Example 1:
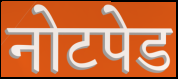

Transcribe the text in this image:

नोटपेड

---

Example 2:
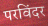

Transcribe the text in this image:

परविंदर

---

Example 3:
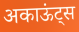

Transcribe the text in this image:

अकाऊंट्स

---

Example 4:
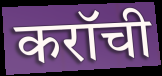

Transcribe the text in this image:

करॉची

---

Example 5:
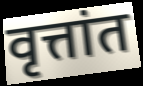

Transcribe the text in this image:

वृत्तांत